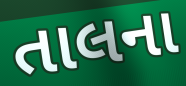
તાલના